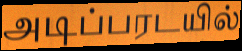
அடிப்பரடயில்